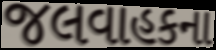
જલવાહકના